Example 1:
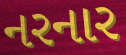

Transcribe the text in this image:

નરનાર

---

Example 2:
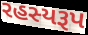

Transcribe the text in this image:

રહસ્યરૂપ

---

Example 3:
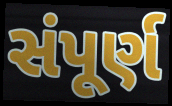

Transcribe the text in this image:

સંપૂર્ણ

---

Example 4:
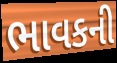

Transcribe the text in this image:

ભાવકની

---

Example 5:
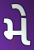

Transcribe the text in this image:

મે